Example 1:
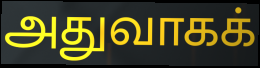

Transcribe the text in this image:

அதுவாகக்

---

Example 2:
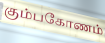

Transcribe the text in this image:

கும்பகோணம்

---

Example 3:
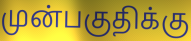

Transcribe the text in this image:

முன்பகுதிக்கு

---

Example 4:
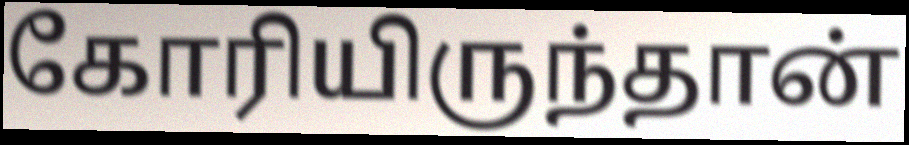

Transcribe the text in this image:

கோரியிருந்தான்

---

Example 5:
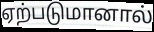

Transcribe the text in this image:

ஏற்படுமானால்